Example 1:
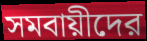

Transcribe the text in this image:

সমবায়ীদের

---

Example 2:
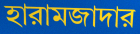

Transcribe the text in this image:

হারামজাদার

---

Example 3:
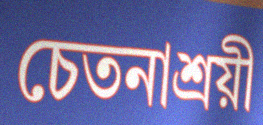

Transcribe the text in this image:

চেতনাশ্রয়ী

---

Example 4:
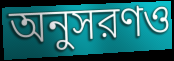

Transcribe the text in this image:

অনুসরণও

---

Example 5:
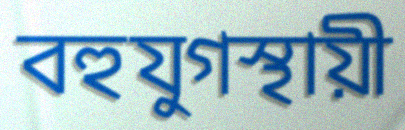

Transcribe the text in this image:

বহুযুগস্থায়ী